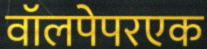
वॉलपेपरएक